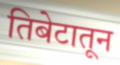
तिबेटातून